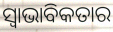
ସ୍ୱାଭାବିକତାର